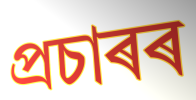
প্ৰচাৰৰ